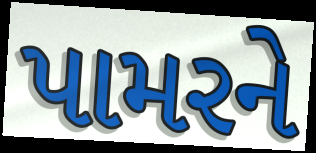
પામરને